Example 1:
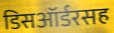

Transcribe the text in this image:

डिसऑर्डरसह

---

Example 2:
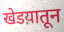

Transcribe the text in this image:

खेडय़ातून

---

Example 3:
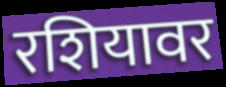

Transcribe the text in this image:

रशियावर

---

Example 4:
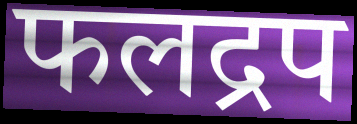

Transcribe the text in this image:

फलद्रप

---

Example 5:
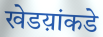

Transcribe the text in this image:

खेडय़ांकडे